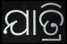
ଯାତ୍ରି